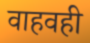
वाहवही